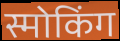
स्‍मोकिंग